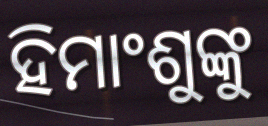
ହିମାଂଶୁଙ୍କୁ